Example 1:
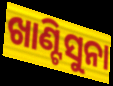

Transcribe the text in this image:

ଖାଣ୍ଟିସୁନା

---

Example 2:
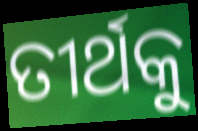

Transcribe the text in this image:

ତୀର୍ଥକୁ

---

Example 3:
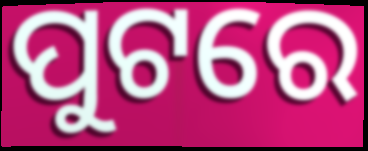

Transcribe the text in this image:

ପୁଟରେ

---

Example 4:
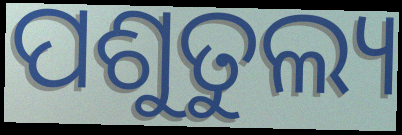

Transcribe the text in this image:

ପଶୁତୁଲ୍ୟ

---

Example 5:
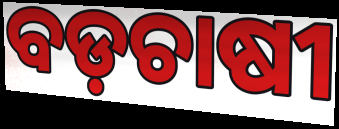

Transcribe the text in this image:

ବଡ଼ଚାଷୀ